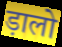
ड़ालो